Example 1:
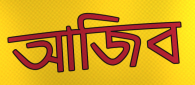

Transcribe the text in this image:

আজিব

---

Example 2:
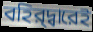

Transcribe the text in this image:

বহির্‌দ্বারেই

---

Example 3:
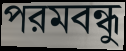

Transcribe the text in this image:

পরমবন্ধু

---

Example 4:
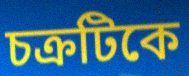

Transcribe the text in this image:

চক্রটিকে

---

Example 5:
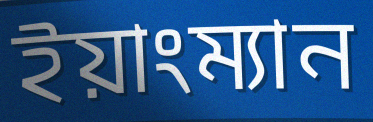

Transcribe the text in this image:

ইয়াংম্যান